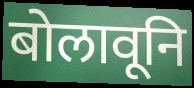
बोलावूनि